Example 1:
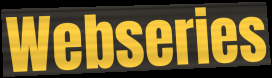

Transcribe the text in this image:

Webseries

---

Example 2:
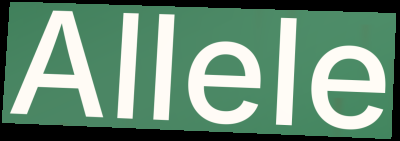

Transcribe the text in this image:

Allele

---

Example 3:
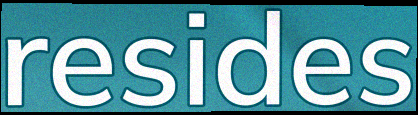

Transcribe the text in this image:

resides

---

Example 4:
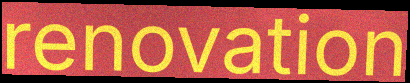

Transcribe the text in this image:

renovation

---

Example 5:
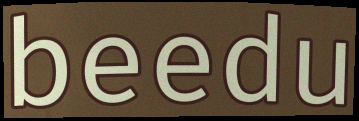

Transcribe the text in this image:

beedu